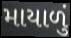
માયાળું